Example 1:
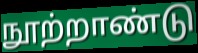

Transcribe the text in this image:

நூற்றாண்டு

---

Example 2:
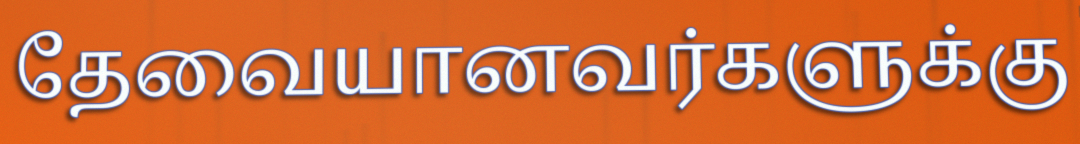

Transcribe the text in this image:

தேவையானவர்களுக்கு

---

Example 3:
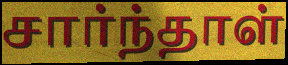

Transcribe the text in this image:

சார்ந்தாள்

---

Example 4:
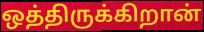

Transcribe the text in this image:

ஒத்திருக்கிறான்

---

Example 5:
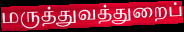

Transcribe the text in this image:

மருத்துவத்துறைப்